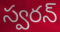
స్వరన్